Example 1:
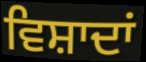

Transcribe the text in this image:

ਵਿਸ਼ਾਦਾਂ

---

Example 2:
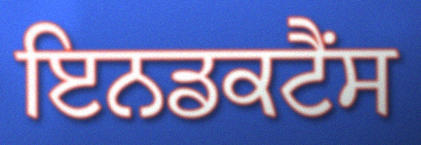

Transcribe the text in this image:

ਇਨਡਕਟੈਂਸ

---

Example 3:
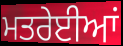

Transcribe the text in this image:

ਮਤਰੇਈਆਂ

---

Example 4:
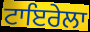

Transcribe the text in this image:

ਟਾਇਰੇਲਾ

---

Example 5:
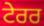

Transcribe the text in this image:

ਟੇਰਰ